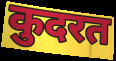
कुदरत